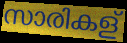
സാരികള്